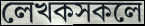
লেখকসকলে